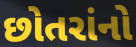
છોતરાંનો